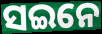
ସଇନେ